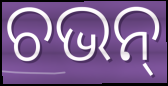
ଚଭନ୍